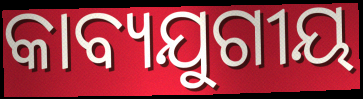
କାବ୍ୟଯୁଗୀୟ